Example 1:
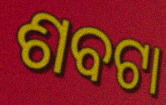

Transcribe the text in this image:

ଶବଟା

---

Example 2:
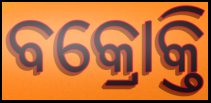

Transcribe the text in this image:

ବକ୍ରୋକ୍ତି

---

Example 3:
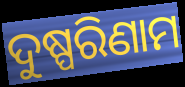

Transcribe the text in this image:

ଦୁଷ୍ପରିଣାମ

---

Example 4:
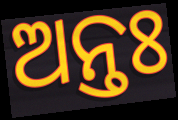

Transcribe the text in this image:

ଅନ୍ତଃ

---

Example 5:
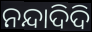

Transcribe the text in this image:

ନନ୍ଦାଦିଦି